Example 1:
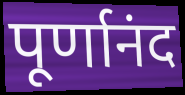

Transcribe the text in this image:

पूर्णानंद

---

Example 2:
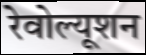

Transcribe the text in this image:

रेवोल्यूशन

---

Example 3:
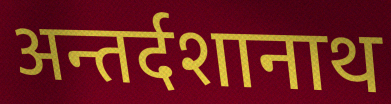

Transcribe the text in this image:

अन्तर्दशानाथ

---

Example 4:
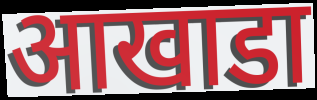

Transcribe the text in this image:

आखाडा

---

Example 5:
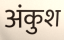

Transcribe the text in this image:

अंकुश